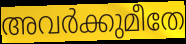
അവർക്കുമീതേ